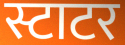
स्टाटर